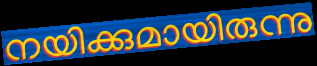
നയിക്കുമായിരുന്നു